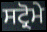
ਸਟ੍ਰੋਮੇ